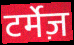
टर्मेज़